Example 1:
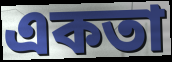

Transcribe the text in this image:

একতা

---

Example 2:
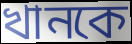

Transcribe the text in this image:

খানকে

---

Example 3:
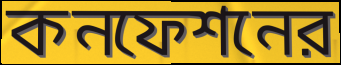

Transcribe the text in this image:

কনফেশনের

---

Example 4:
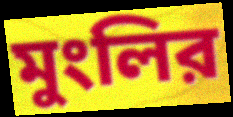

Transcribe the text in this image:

মুংলির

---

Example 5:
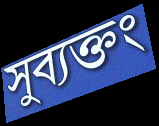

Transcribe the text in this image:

সুব্যক্তং